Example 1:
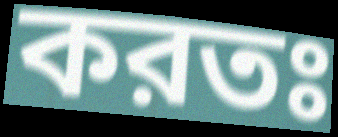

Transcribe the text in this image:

করতঃ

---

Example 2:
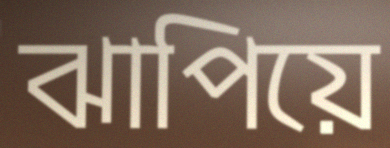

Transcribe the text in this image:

ঝাপিয়ে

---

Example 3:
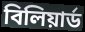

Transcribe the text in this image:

বিলিয়ার্ড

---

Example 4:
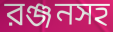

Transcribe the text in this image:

রঞ্জনসহ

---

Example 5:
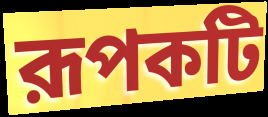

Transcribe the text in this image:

রূপকটি